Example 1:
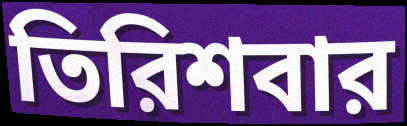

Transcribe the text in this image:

তিরিশবার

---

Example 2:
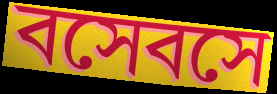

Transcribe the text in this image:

বসেবসে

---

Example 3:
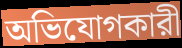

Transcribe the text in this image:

অভিযোগকারী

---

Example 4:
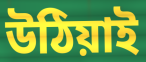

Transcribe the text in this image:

উঠিয়াই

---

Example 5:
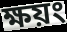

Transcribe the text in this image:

ক্ষয়ং